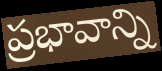
ప్రభావాన్ని